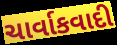
ચાર્વાકવાદી